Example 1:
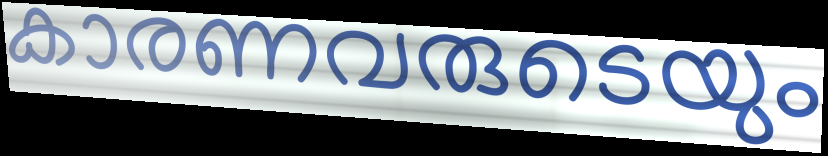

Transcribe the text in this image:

കാരണവരുടെയും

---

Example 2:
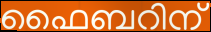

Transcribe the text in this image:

ഫൈബറിന്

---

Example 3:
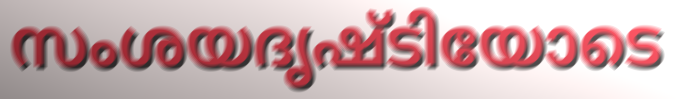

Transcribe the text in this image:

സംശയദൃഷ്ടിയോടെ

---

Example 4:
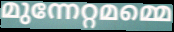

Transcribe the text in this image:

മുന്നേറ്റമമ്മെ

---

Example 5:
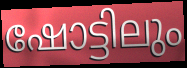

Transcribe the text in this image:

ഷോട്ടിലും